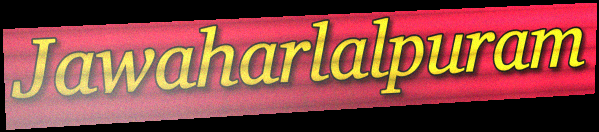
Jawaharlalpuram